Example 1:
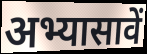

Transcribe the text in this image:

अभ्यासावें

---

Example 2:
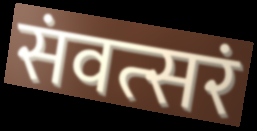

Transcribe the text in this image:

संवत्सरं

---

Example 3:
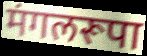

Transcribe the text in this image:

मंगलरूपा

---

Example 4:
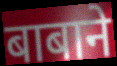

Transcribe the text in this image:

बाबाने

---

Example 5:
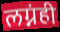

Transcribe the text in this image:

लग्नंही